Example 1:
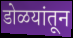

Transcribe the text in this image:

डोळयांतून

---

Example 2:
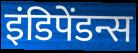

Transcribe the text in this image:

इंडिपेंडन्स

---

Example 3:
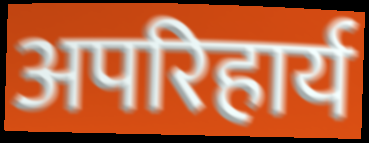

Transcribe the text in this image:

अपरिहार्य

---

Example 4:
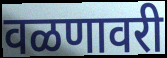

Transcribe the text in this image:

वळणावरी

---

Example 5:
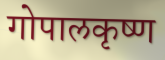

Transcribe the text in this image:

गोपालकृष्ण